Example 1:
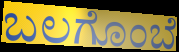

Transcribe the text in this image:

ಬಲಗೊಂಬೆ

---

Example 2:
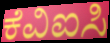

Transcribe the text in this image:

ಕೆವಿಐಸಿ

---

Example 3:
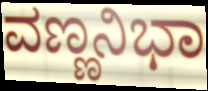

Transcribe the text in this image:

ವಣ್ಣನಿಭಾ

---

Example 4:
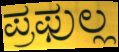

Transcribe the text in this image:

ಪ್ರಫುಲ್ಲ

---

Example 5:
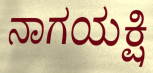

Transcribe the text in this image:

ನಾಗಯಕ್ಷಿ